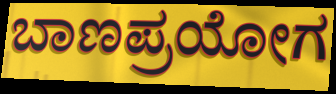
ಬಾಣಪ್ರಯೋಗ